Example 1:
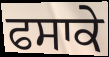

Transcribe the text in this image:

ਫਸਾਕੇ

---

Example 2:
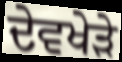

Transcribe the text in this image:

ਦੇਵਖੇੜੇ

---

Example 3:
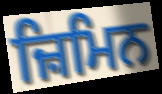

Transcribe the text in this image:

ਜ਼ਿਮਿਨ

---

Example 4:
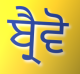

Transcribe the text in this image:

ਬ੍ਰੈਵੋ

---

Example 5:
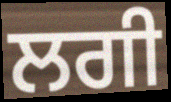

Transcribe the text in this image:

ਲਗੀ